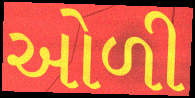
ઓળી